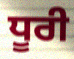
ਧੂਰੀ